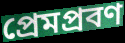
প্রেমপ্রবণ